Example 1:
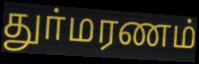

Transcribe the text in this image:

துர்மரணம்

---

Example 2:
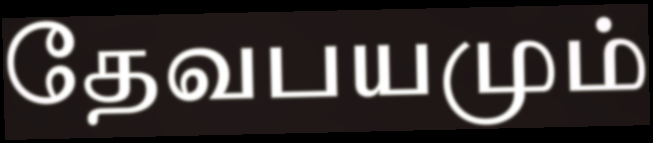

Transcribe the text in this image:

தேவபயமும்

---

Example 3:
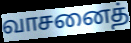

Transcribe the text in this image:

வாசனைத்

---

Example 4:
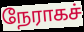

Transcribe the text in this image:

நேராகச்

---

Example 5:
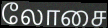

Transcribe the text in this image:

லோசை